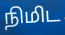
நிமிட